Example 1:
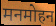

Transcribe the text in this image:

मनमोहन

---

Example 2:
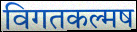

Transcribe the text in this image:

विगतकल्मष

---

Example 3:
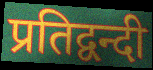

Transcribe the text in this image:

प्रतिद्वन्दी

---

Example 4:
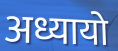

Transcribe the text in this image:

अध्यायो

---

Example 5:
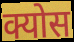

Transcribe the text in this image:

क्योस